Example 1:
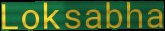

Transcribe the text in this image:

Loksabha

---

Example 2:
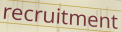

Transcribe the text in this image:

recruitment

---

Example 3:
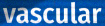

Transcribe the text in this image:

vascular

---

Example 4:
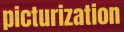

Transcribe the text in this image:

picturization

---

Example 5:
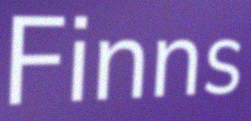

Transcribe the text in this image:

Finns